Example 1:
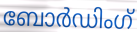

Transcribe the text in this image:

ബോർഡിംഗ്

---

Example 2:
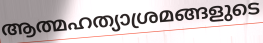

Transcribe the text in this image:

ആത്മഹത്യാശ്രമങ്ങളുടെ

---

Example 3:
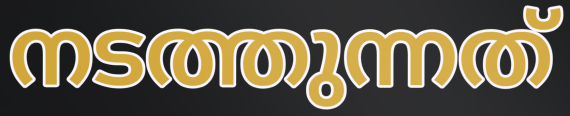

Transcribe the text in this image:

നടത്തുന്നത്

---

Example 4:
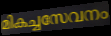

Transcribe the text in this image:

മികച്ചസേവനം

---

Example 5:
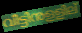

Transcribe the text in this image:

വീട്ടിനുളളില്